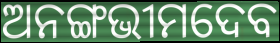
ଅନଙ୍ଗଭୀମଦେବ